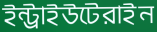
ইন্ট্রাইউটেরাইন